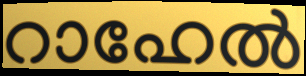
റാഹേൽ